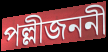
পল্লীজননী